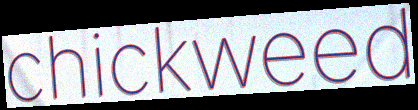
chickweed